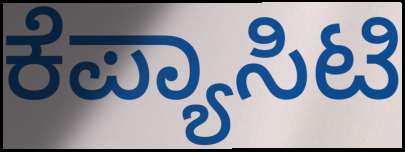
ಕೆಪ್ಯಾಸಿಟಿ